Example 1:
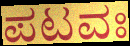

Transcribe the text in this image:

ಪಟವಃ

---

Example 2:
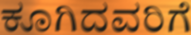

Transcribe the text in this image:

ಕೂಗಿದವರಿಗೆ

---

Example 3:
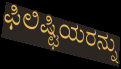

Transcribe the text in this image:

ಫಿಲಿಷ್ಟಿಯರನ್ನು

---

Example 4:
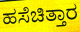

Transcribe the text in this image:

ಹಸೆಚಿತ್ತಾರ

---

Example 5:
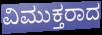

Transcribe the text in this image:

ವಿಮುಕ್ತರಾದ